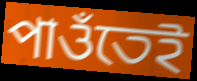
পাওঁতেই